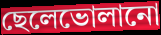
ছেলেভোলানো